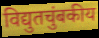
विद्युतचुंबकीय